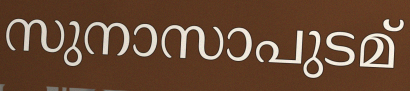
സുനാസാപുടമ്